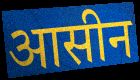
आसीन